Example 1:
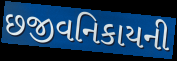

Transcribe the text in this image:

છજીવનિકાયની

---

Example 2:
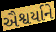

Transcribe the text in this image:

ઐશ્વર્યાને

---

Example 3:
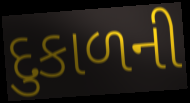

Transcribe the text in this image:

દુકાળની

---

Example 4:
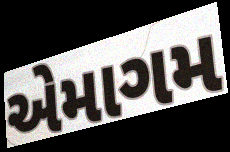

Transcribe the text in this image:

એમાગમ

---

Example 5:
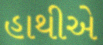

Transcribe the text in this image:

હાથીએ